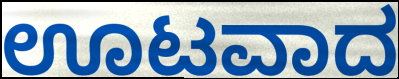
ಊಟವಾದ